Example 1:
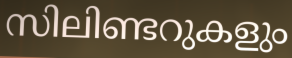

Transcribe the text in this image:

സിലിണ്ടറുകളും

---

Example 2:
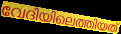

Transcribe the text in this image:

വേദിയിലെത്തിയത്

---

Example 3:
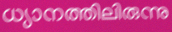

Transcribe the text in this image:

ധ്യാനത്തിലിരുന്നു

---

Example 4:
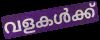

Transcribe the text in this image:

വളകൾക്ക്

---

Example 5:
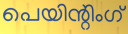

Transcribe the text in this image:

പെയിന്റിംഗ്